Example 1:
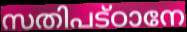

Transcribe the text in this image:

സതിപട്ഠാനേ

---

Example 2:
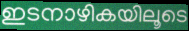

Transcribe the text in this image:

ഇടനാഴികയിലൂടെ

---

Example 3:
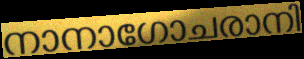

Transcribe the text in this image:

നാനാഗോചരാനി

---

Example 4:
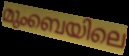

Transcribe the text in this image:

മുംബെയിലെ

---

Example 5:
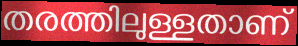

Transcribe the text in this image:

തരത്തിലുള്ളതാണ്